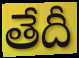
తేదీ